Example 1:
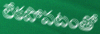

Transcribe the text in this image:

లేకపోవటంతో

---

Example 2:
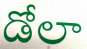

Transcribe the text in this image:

డోలా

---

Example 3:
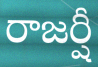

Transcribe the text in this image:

రాజర్షీ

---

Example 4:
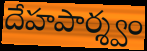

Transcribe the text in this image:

దేహపార్శ్వం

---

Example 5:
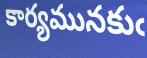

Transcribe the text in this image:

కార్యమునకుఁ